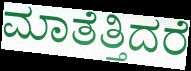
ಮಾತೆತ್ತಿದರೆ